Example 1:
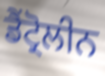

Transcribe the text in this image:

ਡੈਂਟ੍ਰੋਲੀਨ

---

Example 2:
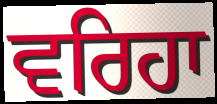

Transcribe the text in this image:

ਵਰਿਹਾ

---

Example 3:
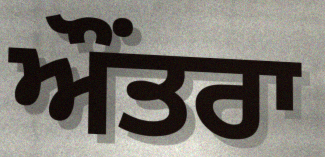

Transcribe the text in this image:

ਔਂਤਰਾ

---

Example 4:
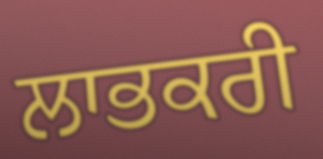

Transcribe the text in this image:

ਲਾਭਕਰੀ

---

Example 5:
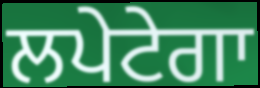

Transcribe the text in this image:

ਲਪੇਟੇਗਾ